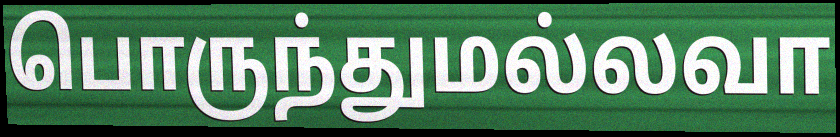
பொருந்துமல்லவா